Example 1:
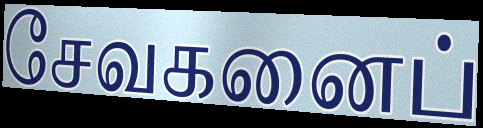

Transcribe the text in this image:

சேவகனைப்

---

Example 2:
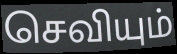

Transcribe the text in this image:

செவியும்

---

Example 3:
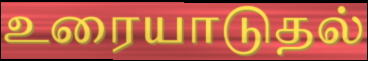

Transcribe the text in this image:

உரையாடுதல்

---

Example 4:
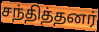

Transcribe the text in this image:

சந்தித்தனர்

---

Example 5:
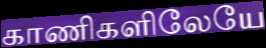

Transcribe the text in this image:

காணிகளிலேயே